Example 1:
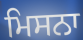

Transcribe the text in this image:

ਮਿਸਨਾ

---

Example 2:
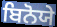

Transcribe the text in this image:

ਬਿਨੋਯੇ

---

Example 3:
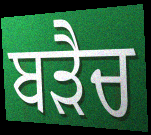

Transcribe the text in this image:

ਬੜੈਚ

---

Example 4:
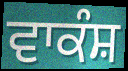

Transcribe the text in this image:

ਵਾਕੰਸ਼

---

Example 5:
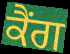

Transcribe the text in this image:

ਕੈਂਗ